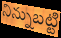
నిన్నుబట్టి